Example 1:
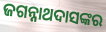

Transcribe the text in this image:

ଜଗନ୍ନାଥଦାସଙ୍କର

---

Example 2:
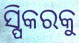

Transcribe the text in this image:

ସ୍ପିକରକୁ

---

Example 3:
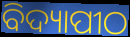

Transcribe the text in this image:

ବିଦ୍ୟାପୀଠ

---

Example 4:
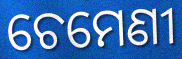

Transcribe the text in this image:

ଚେମେଣୀ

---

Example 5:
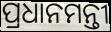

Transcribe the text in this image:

ପ୍ରଧାନମନ୍ତୀ